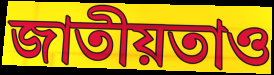
জাতীয়তাও